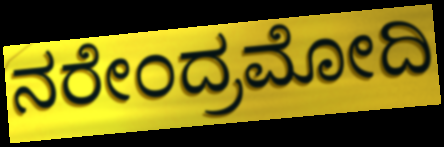
ನರೇಂದ್ರಮೋದಿ